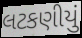
લટકણીયું